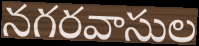
నగరవాసుల